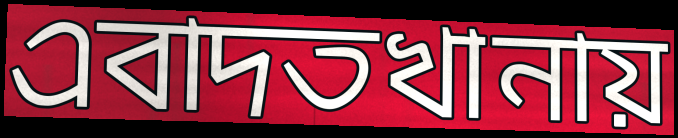
এবাদতখানায়